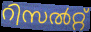
റിസൽറ്റ്